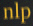
nlp